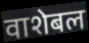
वाशेबल